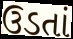
ઉડતાં